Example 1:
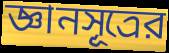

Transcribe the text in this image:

জ্ঞানসূত্রের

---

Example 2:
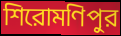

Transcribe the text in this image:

শিরোমণিপুর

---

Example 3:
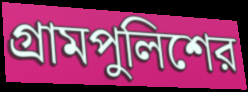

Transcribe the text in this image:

গ্রামপুলিশের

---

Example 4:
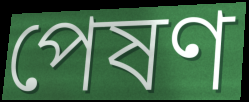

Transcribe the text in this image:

পেষণ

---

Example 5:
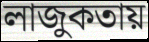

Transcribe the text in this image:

লাজুকতায়